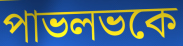
পাভলভকে